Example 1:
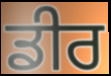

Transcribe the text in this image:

ਡੀਰ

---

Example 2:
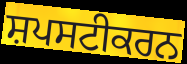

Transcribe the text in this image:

ਸ਼ਪਸਟੀਕਰਨ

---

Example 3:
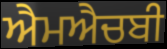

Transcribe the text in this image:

ਐਮਐਚਬੀ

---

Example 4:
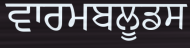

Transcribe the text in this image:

ਵਾਰਮਬਲੂਡਸ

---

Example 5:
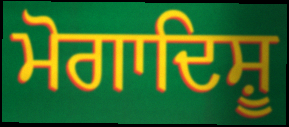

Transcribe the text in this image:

ਮੋਗਾਦਿਸ਼ੂ